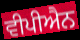
ਵੀਪੀਐਨ